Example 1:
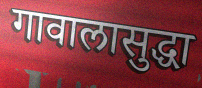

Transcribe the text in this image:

गावालासुद्धा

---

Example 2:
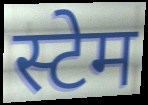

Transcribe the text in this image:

स्टेम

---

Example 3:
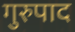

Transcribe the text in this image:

गुरुपाद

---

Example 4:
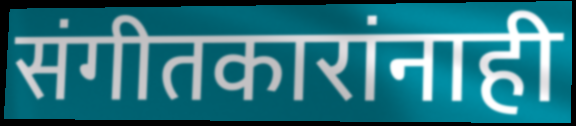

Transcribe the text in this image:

संगीतकारांनाही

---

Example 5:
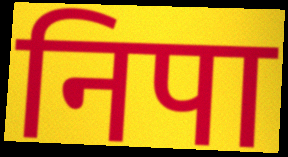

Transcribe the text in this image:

निपा